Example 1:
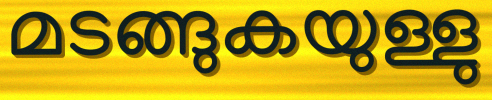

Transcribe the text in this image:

മടങ്ങുകയുള്ളു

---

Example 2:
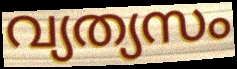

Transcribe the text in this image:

വ്യത്യസം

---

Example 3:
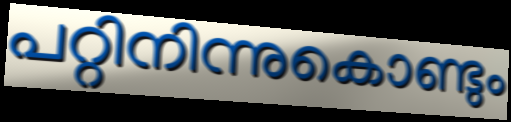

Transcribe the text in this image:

പറ്റിനിന്നുകൊണ്ടും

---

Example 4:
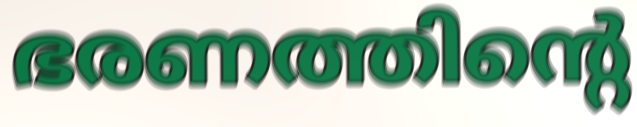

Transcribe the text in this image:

ഭരണത്തിന്റെ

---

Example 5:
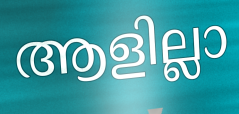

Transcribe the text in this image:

ആളില്ലാ